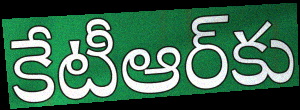
కేటీఆర్‌కు